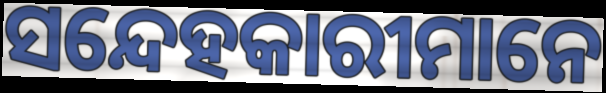
ସନ୍ଦେହକାରୀମାନେ